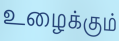
உழைக்கும்